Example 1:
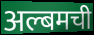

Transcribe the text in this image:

अल्बमची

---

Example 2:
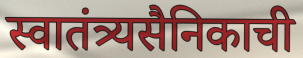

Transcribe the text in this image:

स्वातंत्र्यसैनिकाची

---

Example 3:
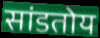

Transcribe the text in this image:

सांडतोय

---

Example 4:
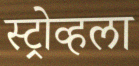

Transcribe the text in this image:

स्ट्रोव्हला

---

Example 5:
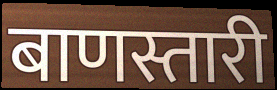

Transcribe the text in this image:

बाणस्तारी